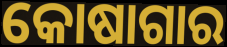
କୋଷାଗାର